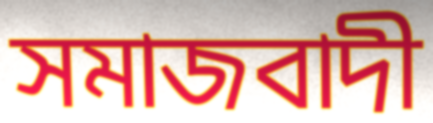
সমাজবাদী